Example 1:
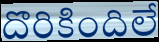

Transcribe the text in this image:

దొరికిందిలే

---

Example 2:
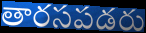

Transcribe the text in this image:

తారసపడరు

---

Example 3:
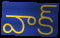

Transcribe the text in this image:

వాక్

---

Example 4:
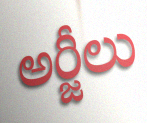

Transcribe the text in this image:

అర్జీలు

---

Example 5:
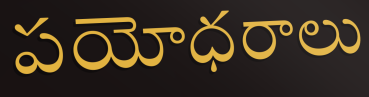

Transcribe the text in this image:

పయోధరాలు